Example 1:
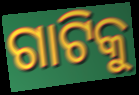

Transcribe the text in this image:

ଗାଟିକୁ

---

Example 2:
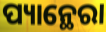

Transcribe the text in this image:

ପ୍ୟାନ୍ଥେରା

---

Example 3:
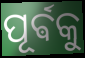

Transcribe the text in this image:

ପୂର୍ଵକୁ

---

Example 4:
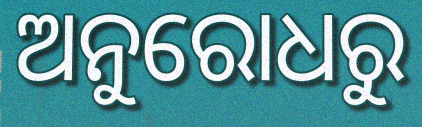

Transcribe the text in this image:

ଅନୁରୋଧରୁ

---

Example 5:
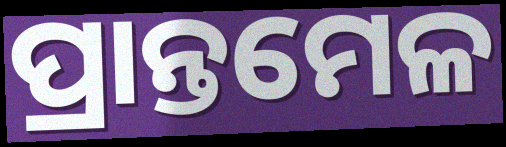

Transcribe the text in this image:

ପ୍ରାନ୍ତମେଳ